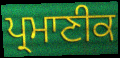
ਪ੍ਰਮਾਣੀਕ